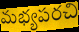
మభ్యపరచి